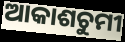
ଆକାଶଚୁମୀ